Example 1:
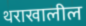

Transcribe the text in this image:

थराखालील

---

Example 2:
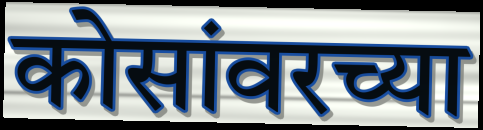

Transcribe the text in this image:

कोसांवरच्या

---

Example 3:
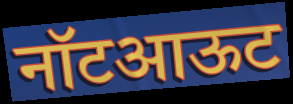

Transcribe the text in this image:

नॉटआऊट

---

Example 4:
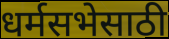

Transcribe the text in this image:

धर्मसभेसाठी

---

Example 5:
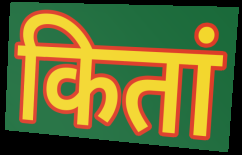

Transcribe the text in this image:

कितां